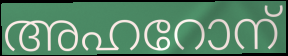
അഹറോന്